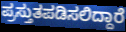
ಪ್ರಸ್ತುತಪಡಿಸಲಿದ್ದಾರೆ